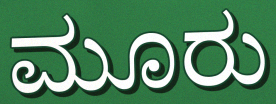
ಮೂರು